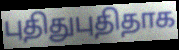
புதிதுபுதிதாக